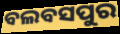
ବଲବସପୁର